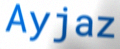
Ayjaz